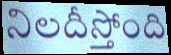
నిలదీస్తోంది